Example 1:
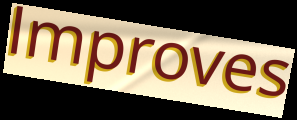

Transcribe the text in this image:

Improves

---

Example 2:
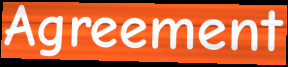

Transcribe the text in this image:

Agreement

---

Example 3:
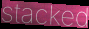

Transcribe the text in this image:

stacked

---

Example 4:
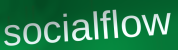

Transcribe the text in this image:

socialflow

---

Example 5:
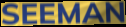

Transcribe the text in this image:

SEEMAN